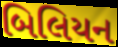
બિલિયન